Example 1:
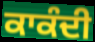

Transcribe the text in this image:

ਕਾਕੰਦੀ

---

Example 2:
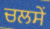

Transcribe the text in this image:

ਚਲਸੇਂ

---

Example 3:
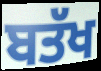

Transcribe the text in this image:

ਬਤੱਖ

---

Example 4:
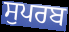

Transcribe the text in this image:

ਸੁਪਰਬ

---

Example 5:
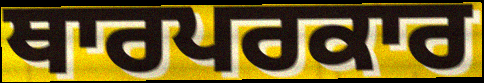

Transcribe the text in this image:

ਥਾਰਪਰਕਾਰ